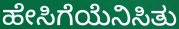
ಹೇಸಿಗೆಯೆನಿಸಿತು